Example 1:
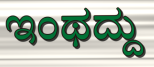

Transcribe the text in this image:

ಇಂಥದ್ದು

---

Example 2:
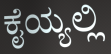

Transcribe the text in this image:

ಕೈಯ್ಯಲ್ಲಿ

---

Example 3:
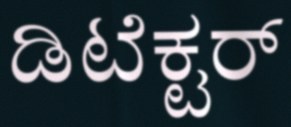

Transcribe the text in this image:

ಡಿಟೆಕ್ಟರ್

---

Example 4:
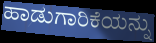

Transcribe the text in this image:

ಹಾಡುಗಾರಿಕೆಯನ್ನು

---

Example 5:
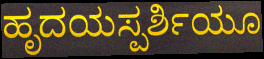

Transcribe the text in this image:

ಹೃದಯಸ್ಪರ್ಶಿಯೂ